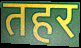
तहर